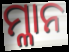
ମ୍ଳାନ